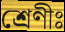
শ্ৰেণীঃ